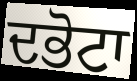
ਦਭੋਟਾ